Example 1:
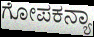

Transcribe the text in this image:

ಗೋಪಕನ್ಯಾ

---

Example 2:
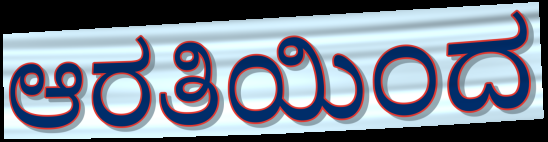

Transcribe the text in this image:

ಆರತಿಯಿಂದ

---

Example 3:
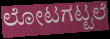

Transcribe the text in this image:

ಲೋಟಗಟ್ಟಲೆ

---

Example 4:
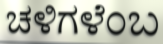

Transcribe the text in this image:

ಚಳಿಗಳೆಂಬ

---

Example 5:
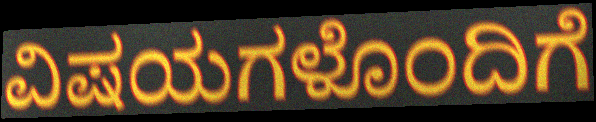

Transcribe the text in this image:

ವಿಷಯಗಳೊಂದಿಗೆ